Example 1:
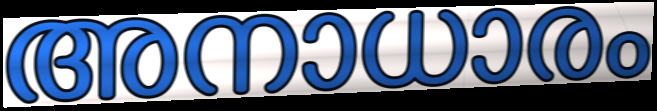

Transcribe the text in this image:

അനാധാരം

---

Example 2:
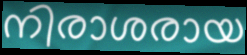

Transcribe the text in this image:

നിരാശരായ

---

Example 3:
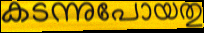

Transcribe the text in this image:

കടന്നുപോയതു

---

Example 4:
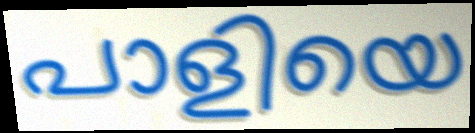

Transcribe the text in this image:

പാളിയെ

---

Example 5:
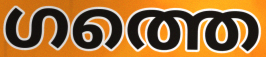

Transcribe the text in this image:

ഗത്തെ